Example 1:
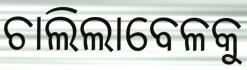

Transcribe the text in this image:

ଚାଲିଲାବେଳକୁ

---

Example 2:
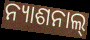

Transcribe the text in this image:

ନ୍ୟାଶନାଲ୍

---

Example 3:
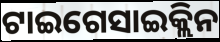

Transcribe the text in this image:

ଟାଇଗେସାଇକ୍ଲିନ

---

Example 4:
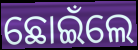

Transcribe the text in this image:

ଛୋଇଁଲେ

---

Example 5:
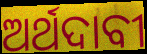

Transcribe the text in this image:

ଅର୍ଥଦାବୀ